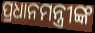
ପ୍ରଧାନମନ୍ତ୍ରୀଙ୍କ